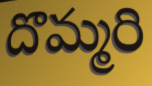
దొమ్మరి